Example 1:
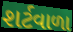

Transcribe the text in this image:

શર્ટવાળા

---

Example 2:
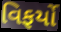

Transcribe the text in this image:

વિફર્યો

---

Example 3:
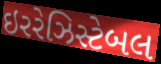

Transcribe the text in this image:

ઇરરેઝિસ્ટેબલ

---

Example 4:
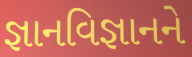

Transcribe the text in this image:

જ્ઞાનવિજ્ઞાનને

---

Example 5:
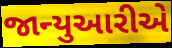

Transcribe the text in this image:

જાન્યુઆરીએ